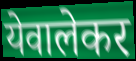
येवालेकर